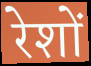
रेशों